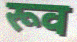
रूव